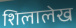
शिलालेख